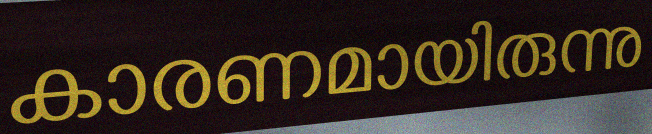
കാരണമായിരുന്നു